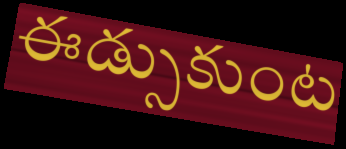
ఈడ్సుకుంట